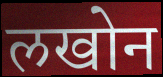
लखोन